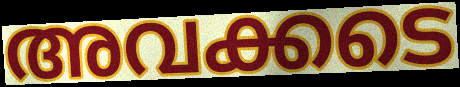
അവക്കടെ